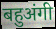
बहुअंगी